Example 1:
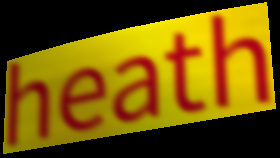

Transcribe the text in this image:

heath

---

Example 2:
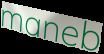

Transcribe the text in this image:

maneb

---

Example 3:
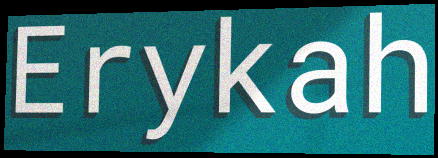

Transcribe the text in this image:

Erykah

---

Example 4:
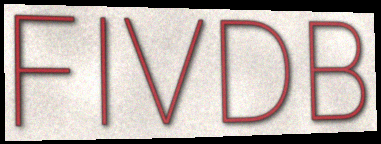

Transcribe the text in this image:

FIVDB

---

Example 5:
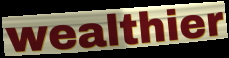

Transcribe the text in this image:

wealthier